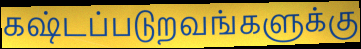
கஷ்டப்படுறவங்களுக்கு